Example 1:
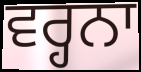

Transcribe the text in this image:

ਵਰ੍ਹਨਾ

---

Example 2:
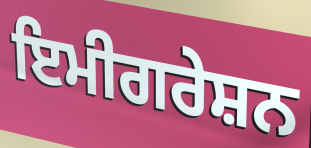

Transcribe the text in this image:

ਇਮੀਗਰੇਸ਼ਨ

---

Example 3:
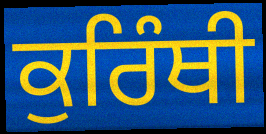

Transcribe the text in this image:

ਕੁਰਿੰਥੀ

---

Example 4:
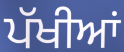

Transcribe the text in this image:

ਪੱਖੀਆਂ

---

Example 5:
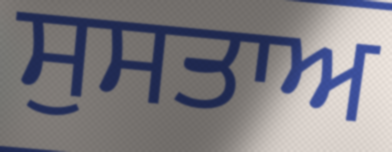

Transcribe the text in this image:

ਸੁਸਤਾਅ